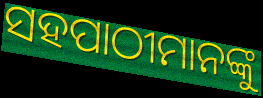
ସହପାଠୀମାନଙ୍କୁ